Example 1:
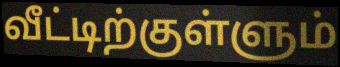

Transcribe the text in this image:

வீட்டிற்குள்ளும்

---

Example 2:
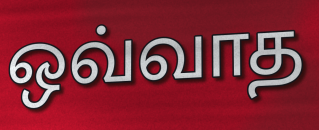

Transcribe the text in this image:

ஒவ்வாத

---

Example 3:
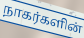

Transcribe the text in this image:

நாகர்களின்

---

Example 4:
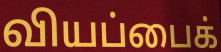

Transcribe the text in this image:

வியப்பைக்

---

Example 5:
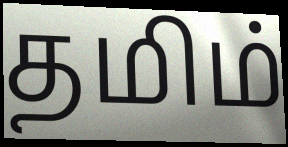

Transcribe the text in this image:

தமிம்